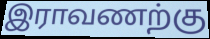
இராவணற்கு